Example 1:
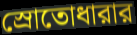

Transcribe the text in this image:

স্রোতোধারার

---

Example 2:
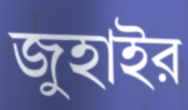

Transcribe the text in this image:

জুহাইর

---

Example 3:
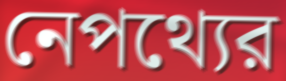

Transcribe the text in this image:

নেপথ্যের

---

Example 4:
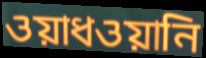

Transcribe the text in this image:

ওয়াধওয়ানি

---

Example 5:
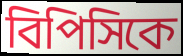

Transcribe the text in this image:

বিপিসিকে